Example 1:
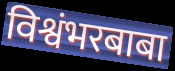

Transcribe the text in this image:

विश्वंभरबाबा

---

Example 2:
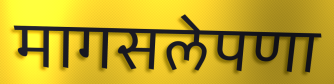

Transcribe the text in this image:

मागसलेपणा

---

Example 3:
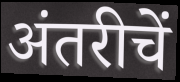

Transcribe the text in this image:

अंतरीचें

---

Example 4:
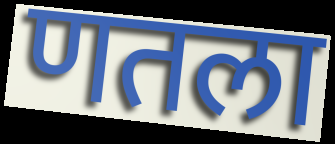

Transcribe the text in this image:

णतला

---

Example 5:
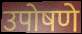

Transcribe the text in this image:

उपोषणे